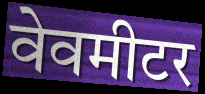
वेवमीटर